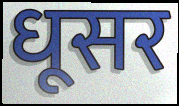
धूसर